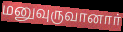
மனுவுருவானார்